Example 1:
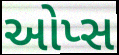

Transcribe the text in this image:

ઓપ્સ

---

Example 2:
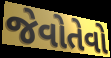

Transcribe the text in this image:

જેવોતેવો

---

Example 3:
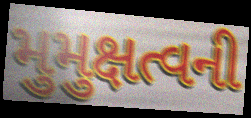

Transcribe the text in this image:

મુમુક્ષત્વની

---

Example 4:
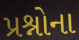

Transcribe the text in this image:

પ્રશ્નોના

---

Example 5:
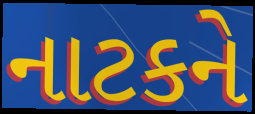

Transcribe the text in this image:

નાટકને